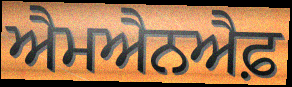
ਐਮਐਨਐਫ਼